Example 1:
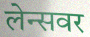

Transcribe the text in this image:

लेन्सवर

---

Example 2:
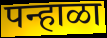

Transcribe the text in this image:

पन्हाळा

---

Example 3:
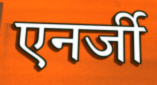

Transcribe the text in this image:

एनर्जी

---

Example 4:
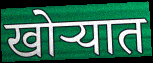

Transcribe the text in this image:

खोर्‍यात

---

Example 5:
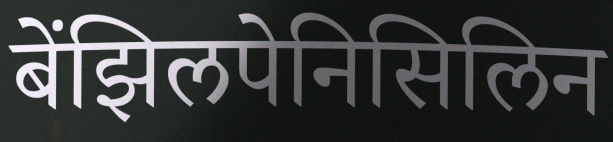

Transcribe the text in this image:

बेंझिलपेनिसिलिन